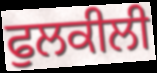
ਫੁਲਕੀਲੀ